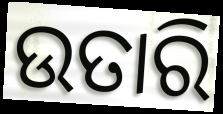
ଉତାରି